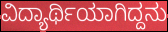
ವಿದ್ಯಾರ್ಥಿಯಾಗಿದ್ದನು